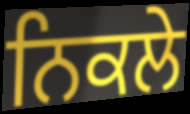
ਨਿਕਲੇ